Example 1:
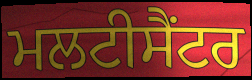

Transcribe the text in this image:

ਮਲਟੀਸੈਂਟਰ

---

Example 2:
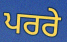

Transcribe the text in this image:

ਪਰਰੇ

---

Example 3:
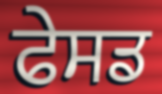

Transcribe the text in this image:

ਫੇਸਡ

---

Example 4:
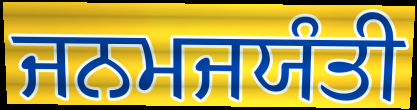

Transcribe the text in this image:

ਜਨਮਜਯੰਤੀ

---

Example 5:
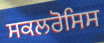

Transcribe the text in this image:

ਸਕਲਰੋਸਿਸ